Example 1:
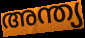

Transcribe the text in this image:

അന്ത്യ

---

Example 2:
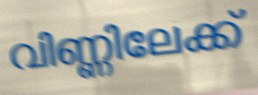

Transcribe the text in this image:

വിണ്ണിലേക്ക്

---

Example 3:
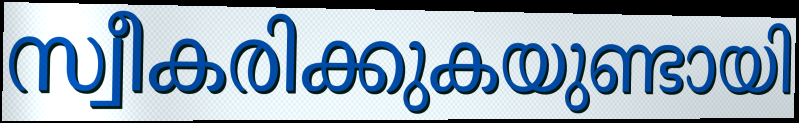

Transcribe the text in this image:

സ്വീകരിക്കുകയുണ്ടായി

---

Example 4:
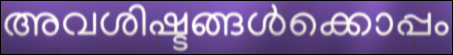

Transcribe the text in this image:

അവശിഷ്ടങ്ങൾക്കൊപ്പം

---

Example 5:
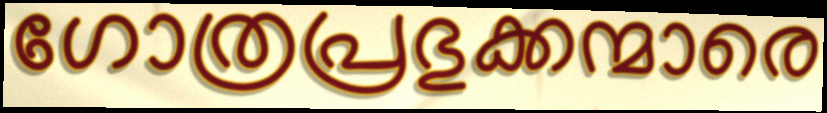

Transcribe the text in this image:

ഗോത്രപ്രഭുക്കന്മാരെ